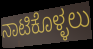
ನಾಟಿಕೊಳ್ಳಲು